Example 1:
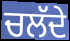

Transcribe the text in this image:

ਚਲੱਦੇ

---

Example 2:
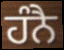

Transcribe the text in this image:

ਹੰਨੈ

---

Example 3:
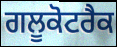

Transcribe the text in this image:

ਗਲੂਕੋਟਰੈਕ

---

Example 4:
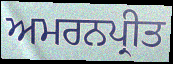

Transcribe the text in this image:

ਅਮਰਨਪ੍ਰੀਤ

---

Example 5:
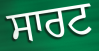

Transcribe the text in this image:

ਸਾਰਟ